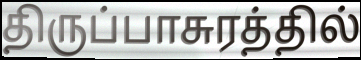
திருப்பாசுரத்தில்